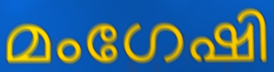
മംഗേഷി